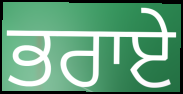
ਭਰਾਏ